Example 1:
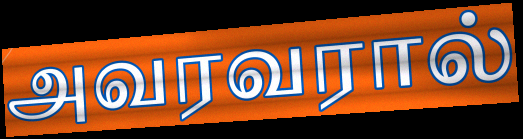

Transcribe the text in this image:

அவரவரால்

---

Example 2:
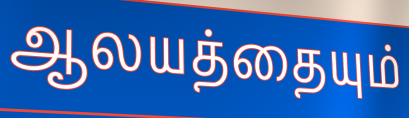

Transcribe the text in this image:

ஆலயத்தையும்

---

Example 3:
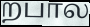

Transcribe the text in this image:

றபால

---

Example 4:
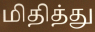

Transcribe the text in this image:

மிதித்து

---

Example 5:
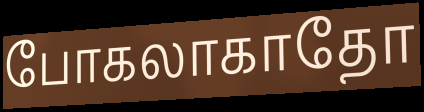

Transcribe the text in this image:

போகலாகாதோ